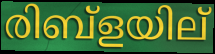
രിബ്ളയില്